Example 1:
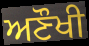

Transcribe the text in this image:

ਅਣੌਖੀ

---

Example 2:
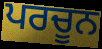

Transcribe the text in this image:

ਪਰਚੂਨ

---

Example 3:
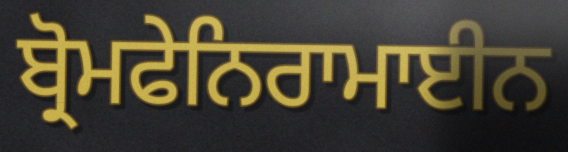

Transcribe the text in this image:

ਬ੍ਰੋਮਫੇਨਿਰਾਮਾਈਨ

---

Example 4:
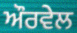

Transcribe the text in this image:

ਔਰਵੇਲ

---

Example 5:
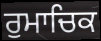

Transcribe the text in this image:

ਰੁਮਾਚਿਕ